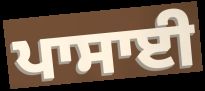
ਪਾਸਾਈ